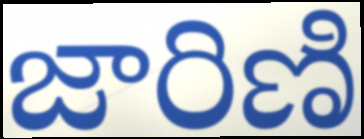
జారిణి